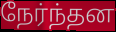
நேர்ந்தன